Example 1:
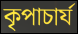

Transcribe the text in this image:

কৃপাচার্য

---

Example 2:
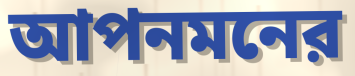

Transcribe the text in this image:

আপনমনের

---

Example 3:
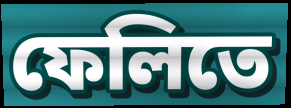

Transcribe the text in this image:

ফেলিতে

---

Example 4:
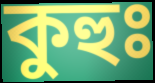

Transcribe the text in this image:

কুহুঃ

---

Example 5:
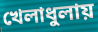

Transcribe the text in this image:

খেলাধুলায়